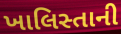
ખાલિસ્તાની